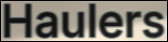
Haulers